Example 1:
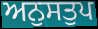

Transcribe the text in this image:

ਅਨੁਸਤੁਪ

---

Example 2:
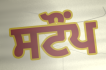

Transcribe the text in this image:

ਸਟੌਂਪ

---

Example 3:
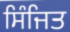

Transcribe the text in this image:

ਸਿੰਜਿਤ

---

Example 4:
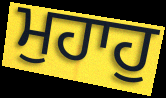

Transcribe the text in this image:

ਮੁਹਾਹੁ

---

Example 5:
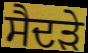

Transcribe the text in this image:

ਸੈਦੜੇ